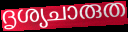
ദൃശ്യചാരുത